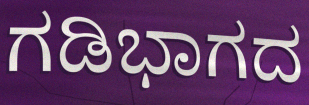
ಗಡಿಭಾಗದ